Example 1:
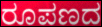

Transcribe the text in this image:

ರೂಪಣದ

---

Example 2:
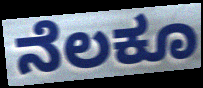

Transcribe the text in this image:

ನೆಲಕೂ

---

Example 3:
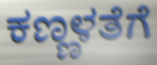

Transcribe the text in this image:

ಕಣ್ಣಳತೆಗೆ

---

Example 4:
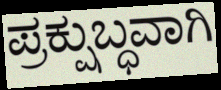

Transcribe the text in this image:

ಪ್ರಕ್ಷುಬ್ಧವಾಗಿ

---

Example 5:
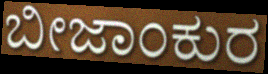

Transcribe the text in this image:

ಬೀಜಾಂಕುರ